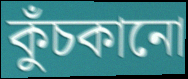
কুঁচকানো